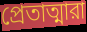
প্রেতাত্মারা